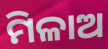
ମିଳାଅ